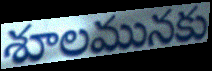
శూలమునకు